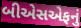
બીએસએફનું